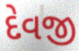
દેવજી